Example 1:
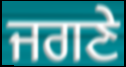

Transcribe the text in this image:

ਜਗਣੇ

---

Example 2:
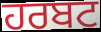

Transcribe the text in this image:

ਹਰਬਟ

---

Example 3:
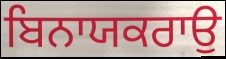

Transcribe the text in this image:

ਬਿਨਾਯਕਰਾਉ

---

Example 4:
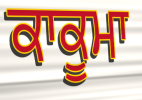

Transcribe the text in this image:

ਕਾਕੂਮਾ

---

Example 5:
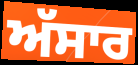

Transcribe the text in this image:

ਅੱਸਾਰ